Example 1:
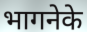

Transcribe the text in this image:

भागनेके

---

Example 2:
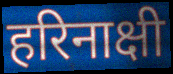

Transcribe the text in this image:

हरिनाक्षी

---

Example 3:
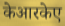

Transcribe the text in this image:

केआरकेए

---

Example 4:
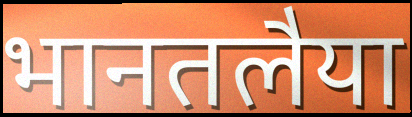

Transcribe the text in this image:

भानतलैया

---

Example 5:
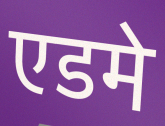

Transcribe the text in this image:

एडमे